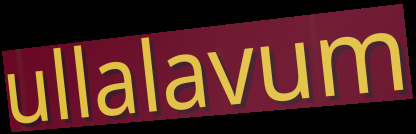
ullalavum